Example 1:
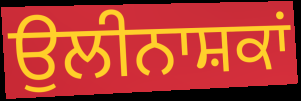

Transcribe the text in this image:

ਉਲੀਨਾਸ਼ਕਾਂ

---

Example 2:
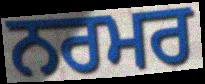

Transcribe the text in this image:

ਨਰਮਰ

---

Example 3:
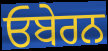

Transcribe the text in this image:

ਓਬੇਰਨ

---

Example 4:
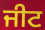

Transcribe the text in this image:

ਜੀਟ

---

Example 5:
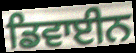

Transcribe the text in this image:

ਡਿਵਾਈਨ